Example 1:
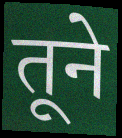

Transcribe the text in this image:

तूने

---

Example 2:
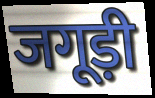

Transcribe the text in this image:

जगूड़ी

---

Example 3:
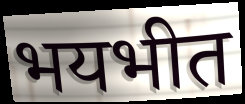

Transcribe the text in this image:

भयभीत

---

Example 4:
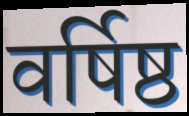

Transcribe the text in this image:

वर्षिष्ठ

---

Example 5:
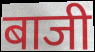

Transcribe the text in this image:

बाजी